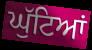
ਘੁੱਟਿਆਂ